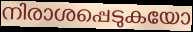
നിരാശപ്പെടുകയോ